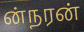
ன்நரன்